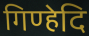
गिण्हेदि